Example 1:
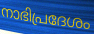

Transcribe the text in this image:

നാഭിപ്രദേശം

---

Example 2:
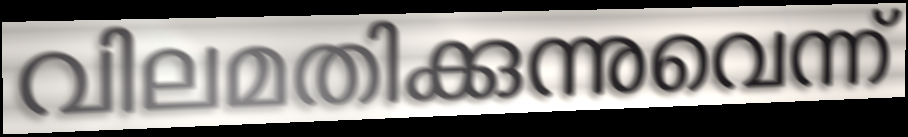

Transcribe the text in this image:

വിലമതിക്കുന്നുവെന്ന്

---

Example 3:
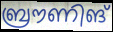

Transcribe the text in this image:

ബ്രൗണിങ്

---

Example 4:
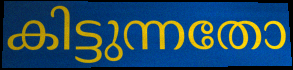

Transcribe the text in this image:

കിട്ടുന്നതോ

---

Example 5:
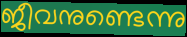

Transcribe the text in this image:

ജീവനുണ്ടെന്നു